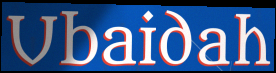
Ubaidah